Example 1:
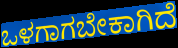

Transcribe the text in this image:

ಒಳಗಾಗಬೇಕಾಗಿದೆ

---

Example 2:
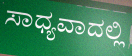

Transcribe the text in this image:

ಸಾಧ್ಯವಾದಲ್ಲಿ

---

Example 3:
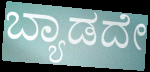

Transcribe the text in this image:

ಬ್ಯಾಡದೇ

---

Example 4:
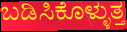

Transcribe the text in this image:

ಬಡಿಸಿಕೊಳ್ಳುತ್ತ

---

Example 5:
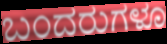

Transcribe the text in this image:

ಬಂದರುಗಳೂ